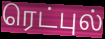
ரெட்புல்